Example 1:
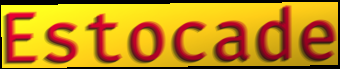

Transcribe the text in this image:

Estocade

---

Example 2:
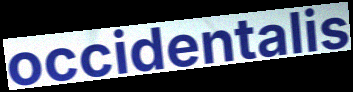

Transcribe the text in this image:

occidentalis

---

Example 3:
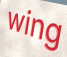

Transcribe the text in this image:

wing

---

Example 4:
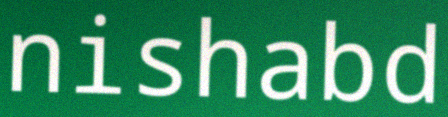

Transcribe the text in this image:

nishabd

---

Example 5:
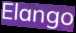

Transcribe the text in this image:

Elango